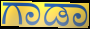
ಗಾಡಾ